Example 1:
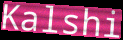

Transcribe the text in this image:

Kalshi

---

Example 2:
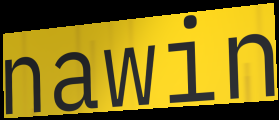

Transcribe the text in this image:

nawin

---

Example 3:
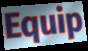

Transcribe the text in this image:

Equip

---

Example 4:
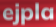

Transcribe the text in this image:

ejpla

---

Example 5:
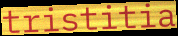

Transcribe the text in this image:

tristitia